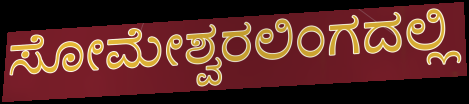
ಸೋಮೇಶ್ವರಲಿಂಗದಲ್ಲಿ